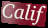
Calif